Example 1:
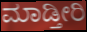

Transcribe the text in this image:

ಮಾಡ್ತೀರಿ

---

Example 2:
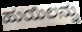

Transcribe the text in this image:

ಹುಯಿಲನ್ನು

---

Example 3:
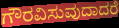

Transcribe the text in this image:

ಗೌರವಿಸುವುದಾದರೆ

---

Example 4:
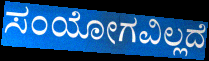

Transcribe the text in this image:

ಸಂಯೋಗವಿಲ್ಲದೆ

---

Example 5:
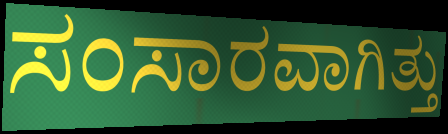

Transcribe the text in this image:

ಸಂಸಾರವಾಗಿತ್ತು